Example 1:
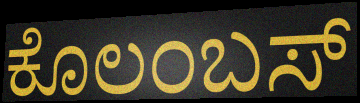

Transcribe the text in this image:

ಕೊಲಂಬಸ್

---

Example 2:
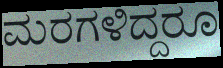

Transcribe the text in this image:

ಮರಗಳಿದ್ದರೂ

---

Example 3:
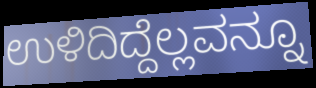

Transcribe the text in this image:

ಉಳಿದಿದ್ದೆಲ್ಲವನ್ನೂ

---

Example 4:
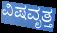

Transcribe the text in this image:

ವಿಷವೃತ್ತ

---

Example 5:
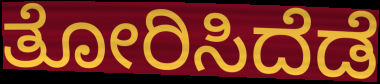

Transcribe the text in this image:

ತೋರಿಸಿದೆಡೆ